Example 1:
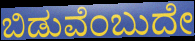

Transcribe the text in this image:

ಬಿಡುವೆಂಬುದೇ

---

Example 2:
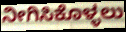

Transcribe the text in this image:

ನೀಗಿಸಿಕೊಳ್ಳಲು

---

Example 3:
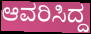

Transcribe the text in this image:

ಆವರಿಸಿದ್ದ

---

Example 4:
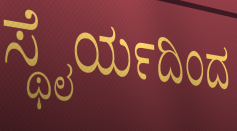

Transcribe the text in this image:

ಸ್ಥೈರ್ಯದಿಂದ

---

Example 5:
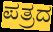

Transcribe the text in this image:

ಪತ್ರದ